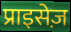
प्राइसेज़